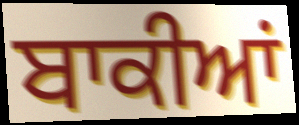
ਬਾਕੀਆਂ